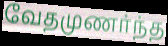
வேதமுணர்ந்த